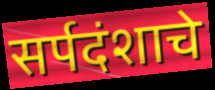
सर्पदंशाचे